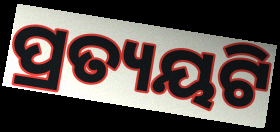
ପ୍ରତ୍ୟୟଟି